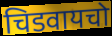
चिडवायचो